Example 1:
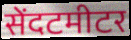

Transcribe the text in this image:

सेंदटमीटर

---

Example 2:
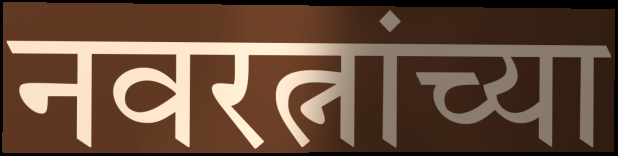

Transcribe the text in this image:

नवरत्नांच्या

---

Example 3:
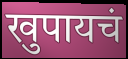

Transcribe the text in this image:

खुपायचं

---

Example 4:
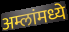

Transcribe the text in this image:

अम्लांमध्ये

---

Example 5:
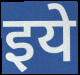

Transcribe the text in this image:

इये